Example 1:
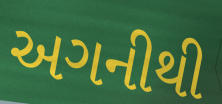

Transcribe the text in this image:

અગનીથી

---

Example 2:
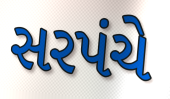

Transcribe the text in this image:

સરપંચે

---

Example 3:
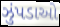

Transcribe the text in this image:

ઝુંપડાઓ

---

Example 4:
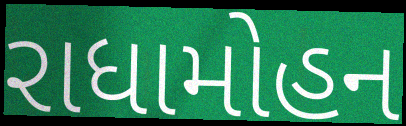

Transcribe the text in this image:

રાધામોહન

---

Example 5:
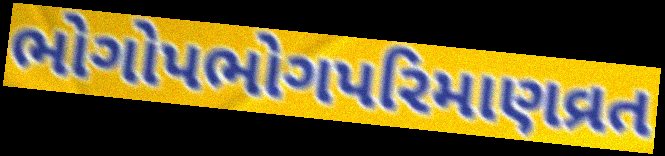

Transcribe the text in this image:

ભોગોપભોગપરિમાણવ્રત